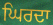
ਘਿਰਦਾ